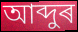
আব্দুৰ